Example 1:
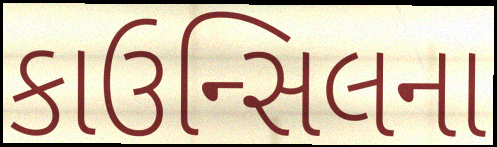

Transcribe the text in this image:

કાઉન્સિલના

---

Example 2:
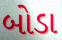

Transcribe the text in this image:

બોડા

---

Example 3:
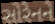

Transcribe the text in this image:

સોરેનને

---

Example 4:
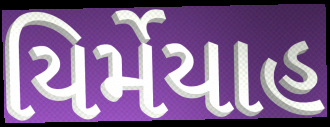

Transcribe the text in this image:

યિર્મેયાહ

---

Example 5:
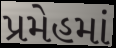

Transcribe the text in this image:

પ્રમેહમાં